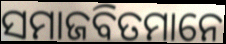
ସମାଜବିତମାନେ